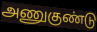
அணுகுண்டு